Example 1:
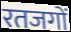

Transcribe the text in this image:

रतजगों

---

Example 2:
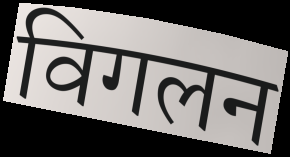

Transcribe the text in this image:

विगलन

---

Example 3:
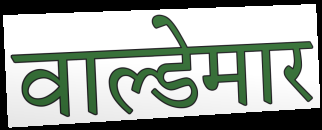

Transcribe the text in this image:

वाल्डेमार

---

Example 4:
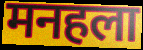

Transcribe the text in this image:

मनहला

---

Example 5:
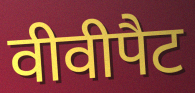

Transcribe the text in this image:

वीवीपैट